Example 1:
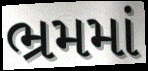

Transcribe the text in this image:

ભ્રમમાં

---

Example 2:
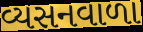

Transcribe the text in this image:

વ્યસનવાળા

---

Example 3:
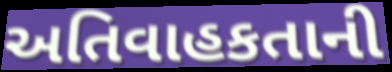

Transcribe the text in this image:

અતિવાહકતાની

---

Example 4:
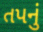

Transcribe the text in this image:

તપનું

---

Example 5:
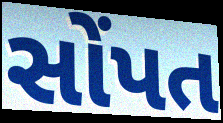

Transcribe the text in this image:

સોંપત